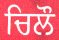
ਚਿਲੌ